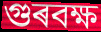
গুৰবক্ষ